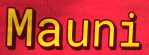
Mauni